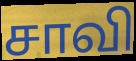
சாவி